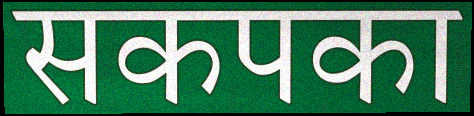
सकपका